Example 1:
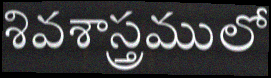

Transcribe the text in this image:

శివశాస్త్రములో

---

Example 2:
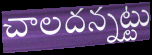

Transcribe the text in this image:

చాలదన్నట్టు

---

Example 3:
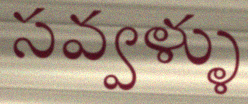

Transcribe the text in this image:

సవ్వళ్ళు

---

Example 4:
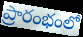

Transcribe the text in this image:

ప్రారంభంలో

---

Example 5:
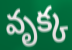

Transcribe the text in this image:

వృక్క